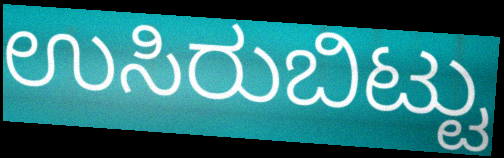
ಉಸಿರುಬಿಟ್ಟು